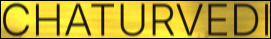
CHATURVEDI